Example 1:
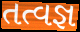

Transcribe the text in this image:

તત્વજ્ઞ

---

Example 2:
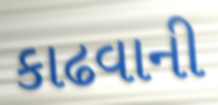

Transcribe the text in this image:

કાઢવાની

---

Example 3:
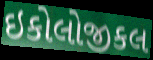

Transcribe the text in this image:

ઇકોલોજીકલ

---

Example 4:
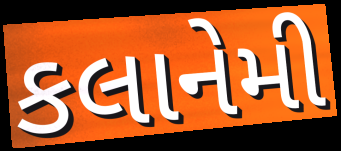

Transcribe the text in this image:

કલાનેમી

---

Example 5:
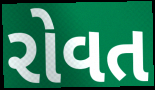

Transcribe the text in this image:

રોવત